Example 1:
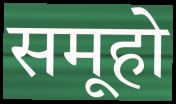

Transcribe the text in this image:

समूहो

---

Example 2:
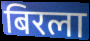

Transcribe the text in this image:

बिरला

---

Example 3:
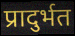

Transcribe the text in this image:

प्रादुर्भत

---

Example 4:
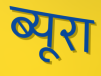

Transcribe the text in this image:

ब्यूरा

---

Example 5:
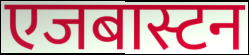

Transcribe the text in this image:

एजबास्टन